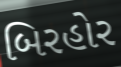
બિરહોર